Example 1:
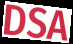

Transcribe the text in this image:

DSA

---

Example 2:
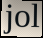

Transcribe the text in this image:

jol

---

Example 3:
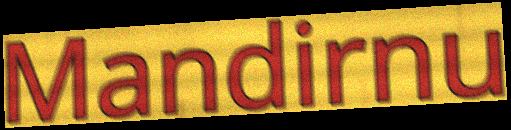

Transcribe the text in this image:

Mandirnu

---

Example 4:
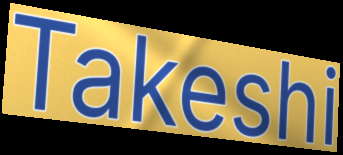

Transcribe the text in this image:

Takeshi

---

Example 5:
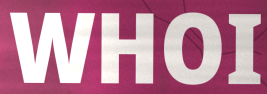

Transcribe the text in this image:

WHOI